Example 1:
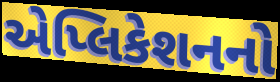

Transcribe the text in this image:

એપ્લિકેશનનો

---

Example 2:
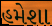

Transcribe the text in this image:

હમેશા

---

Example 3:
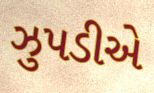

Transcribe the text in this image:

ઝુપડીએ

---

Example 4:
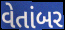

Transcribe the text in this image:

વેતાંબર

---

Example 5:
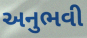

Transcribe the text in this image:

અનુભવી